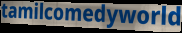
tamilcomedyworld